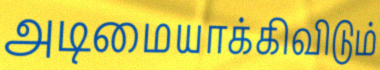
அடிமையாக்கிவிடும்